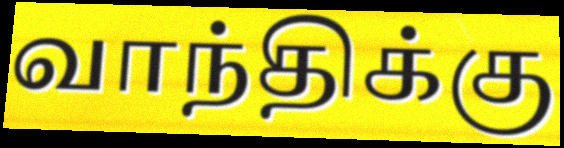
வாந்திக்கு